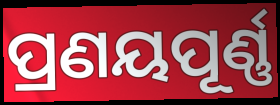
ପ୍ରଣୟପୂର୍ଣ୍ଣ